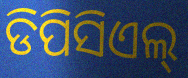
ଡିପିସିଏଲ୍